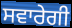
ਸਵਾਰੇਗੀ